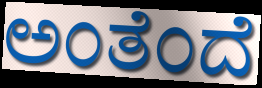
ಅಂತೆಂದೆ